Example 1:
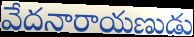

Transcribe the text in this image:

వేదనారాయణుడు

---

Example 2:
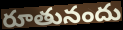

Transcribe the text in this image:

రూతునందు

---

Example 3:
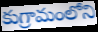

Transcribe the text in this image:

కుగ్రామంలోని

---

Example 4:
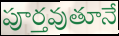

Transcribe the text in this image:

పూర్తవుతూనే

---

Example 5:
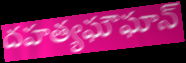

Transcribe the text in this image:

దహత్యఘౌఘాన్